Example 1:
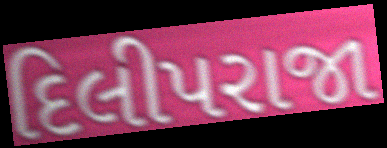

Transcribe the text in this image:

દિલીપરાજા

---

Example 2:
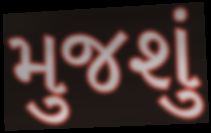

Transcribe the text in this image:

મુજશું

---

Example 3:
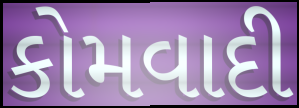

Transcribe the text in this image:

કોમવાદી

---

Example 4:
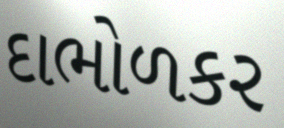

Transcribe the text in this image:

દાભોળકર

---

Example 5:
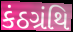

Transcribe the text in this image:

કંઠગ્રંથિ